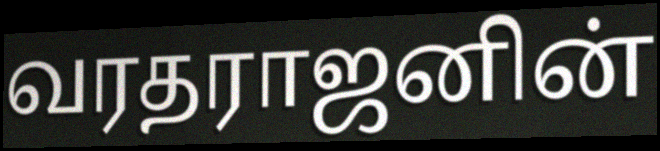
வரதராஜனின்